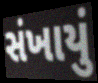
સંખાયું